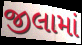
જીલામાં